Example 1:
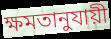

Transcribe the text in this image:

ক্ষমতানুযায়ী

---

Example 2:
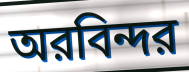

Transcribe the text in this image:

অরবিন্দর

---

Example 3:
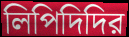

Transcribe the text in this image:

লিপিদিদির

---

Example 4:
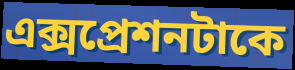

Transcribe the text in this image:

এক্সপ্রেশনটাকে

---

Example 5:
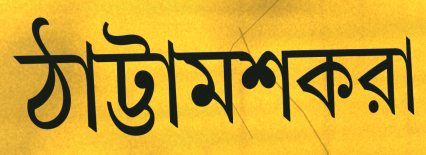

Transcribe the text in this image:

ঠাট্টামশকরা